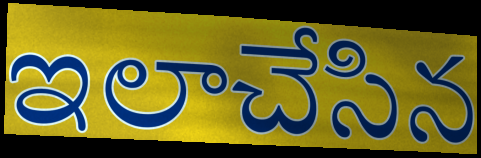
ఇలాచేసిన